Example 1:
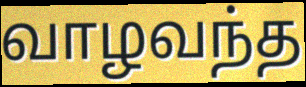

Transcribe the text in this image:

வாழவந்த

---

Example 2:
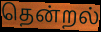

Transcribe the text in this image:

தென்றல்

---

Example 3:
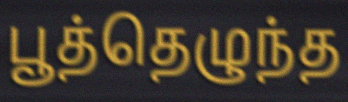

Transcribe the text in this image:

பூத்தெழுந்த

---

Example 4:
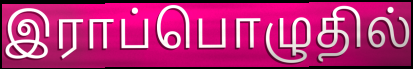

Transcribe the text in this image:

இராப்பொழுதில்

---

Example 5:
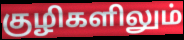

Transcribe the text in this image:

குழிகளிலும்